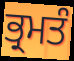
ਭ੍ਰਮਤੰ